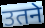
उतने